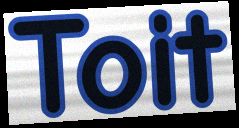
Toit